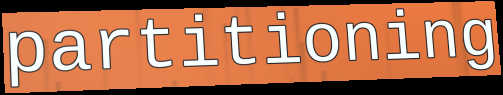
partitioning